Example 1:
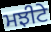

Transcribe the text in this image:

ਮਝੀਟੇ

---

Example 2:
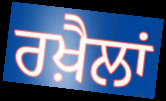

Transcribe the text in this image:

ਰਖ਼ੈਲਾਂ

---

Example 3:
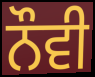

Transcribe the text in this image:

ਨੌਵੀ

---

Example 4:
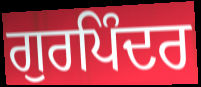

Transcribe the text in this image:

ਗੁਰਪਿੰਦਰ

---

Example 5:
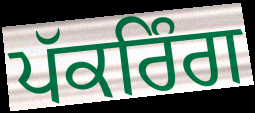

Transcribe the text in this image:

ਪੱਕਰਿੰਗ